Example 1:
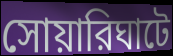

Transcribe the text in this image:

সোয়ারিঘাটে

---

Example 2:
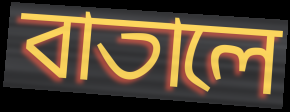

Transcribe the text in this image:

বাতালে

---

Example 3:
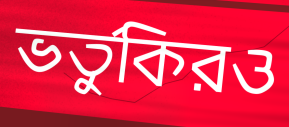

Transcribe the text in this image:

ভর্তুকিরও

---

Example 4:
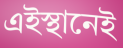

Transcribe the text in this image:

এইস্থানেই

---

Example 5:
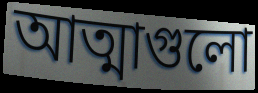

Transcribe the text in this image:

আত্মাগুলো